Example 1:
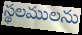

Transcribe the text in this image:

స్థలములను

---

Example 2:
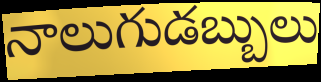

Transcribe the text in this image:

నాలుగుడబ్బులు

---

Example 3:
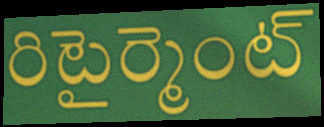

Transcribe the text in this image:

రిటైర్మెంట్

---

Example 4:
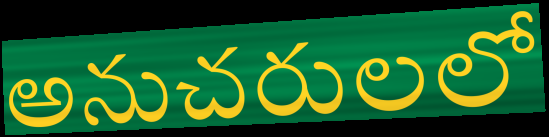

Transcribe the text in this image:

అనుచరులలో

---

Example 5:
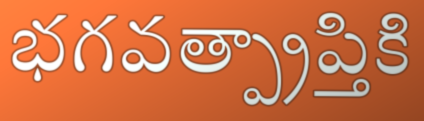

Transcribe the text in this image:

భగవత్ప్రాప్తికి